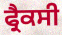
ਫ੍ਰੈਕਸੀ